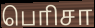
பெரிசா